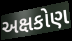
અક્ષકોણ